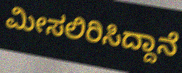
ಮೀಸಲಿರಿಸಿದ್ದಾನೆ